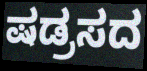
ಷಡ್ರಸದ